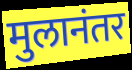
मुलानंतर